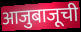
आजुबाजूची